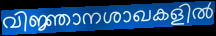
വിജ്ഞാനശാഖകളിൽ